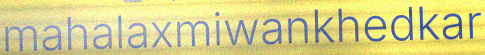
mahalaxmiwankhedkar